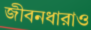
জীবনধারাও